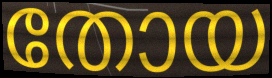
തോയ